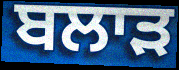
ਬਲਾੜ